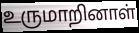
உருமாறினாள்